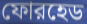
ফোরহেড